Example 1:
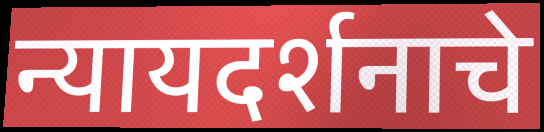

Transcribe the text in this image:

न्यायदर्शनाचे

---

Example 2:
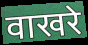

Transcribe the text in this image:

वाखरे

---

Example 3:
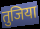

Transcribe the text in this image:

तुजिया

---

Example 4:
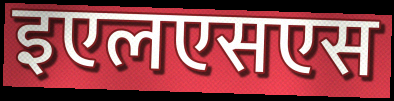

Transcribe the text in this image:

इएलएसएस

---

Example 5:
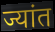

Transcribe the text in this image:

ज्यांत